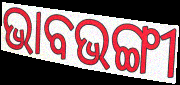
ଭାବଭଙ୍ଗୀ